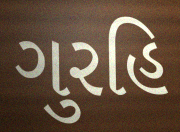
ગુરહિ